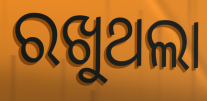
ରଖୁଥଲା